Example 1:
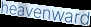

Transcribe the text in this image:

heavenward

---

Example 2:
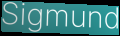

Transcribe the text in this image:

Sigmund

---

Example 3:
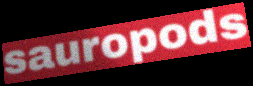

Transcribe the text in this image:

sauropods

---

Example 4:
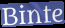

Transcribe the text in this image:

Binte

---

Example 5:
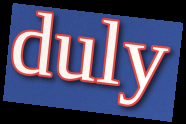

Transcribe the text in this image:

duly